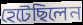
হেটেছিলেন